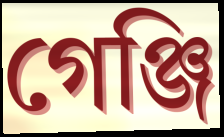
গেঞ্জি